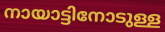
നായാട്ടിനോടുള്ള